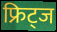
फ्रिट्ज